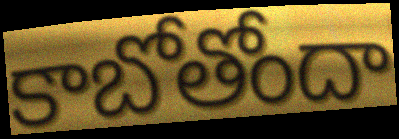
కాబోతోందా